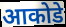
आकोडे